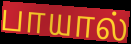
பாயால்